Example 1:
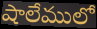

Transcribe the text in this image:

షాలేములో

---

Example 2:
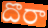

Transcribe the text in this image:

దొరా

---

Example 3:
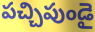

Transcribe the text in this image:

పచ్చిపుండై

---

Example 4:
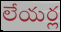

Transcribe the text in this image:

లేయర్ల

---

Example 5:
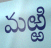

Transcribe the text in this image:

మఱ్ఱి